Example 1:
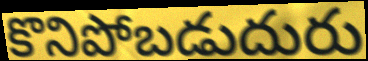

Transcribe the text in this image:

కొనిపోబడుదురు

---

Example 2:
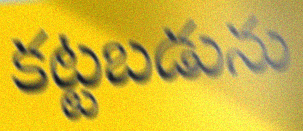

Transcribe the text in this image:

కట్టబడును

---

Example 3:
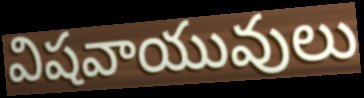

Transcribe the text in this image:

విషవాయువులు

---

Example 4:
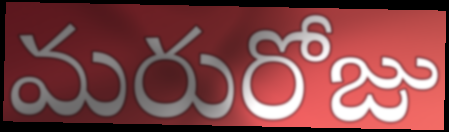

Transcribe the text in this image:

మరురోజు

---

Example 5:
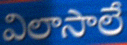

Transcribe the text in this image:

విలాసాలే